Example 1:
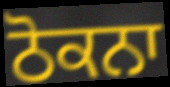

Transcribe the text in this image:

ਠੋਕਨਾ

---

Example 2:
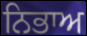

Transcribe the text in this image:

ਨਿਭਾਅ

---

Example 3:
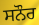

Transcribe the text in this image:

ਸਨੌਰ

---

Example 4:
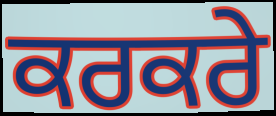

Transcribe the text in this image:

ਕਰਕਰੇ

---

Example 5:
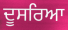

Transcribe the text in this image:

ਦੂਸਰਿਆ